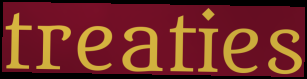
treaties